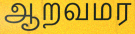
ஆறவமர